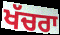
ਖੱਚਰਾ